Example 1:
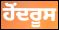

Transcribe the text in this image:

ਹੋਂਦਰੂਸ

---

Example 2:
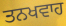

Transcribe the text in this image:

ਤਨਖਵਾਹ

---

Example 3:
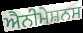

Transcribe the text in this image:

ਐਨੀਮੇਸ਼ਨਸ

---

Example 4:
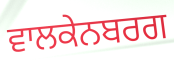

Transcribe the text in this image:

ਵਾਲਕੇਨਬਰਗ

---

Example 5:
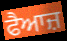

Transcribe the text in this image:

ਫੈਆਜ਼